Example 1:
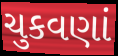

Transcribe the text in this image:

ચુકવણાં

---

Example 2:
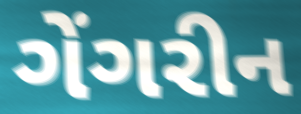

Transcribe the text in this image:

ગેંગરીન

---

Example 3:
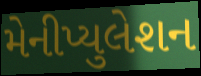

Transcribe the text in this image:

મેનીપ્યુલેશન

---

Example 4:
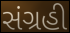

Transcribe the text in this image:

સંગ્રહી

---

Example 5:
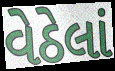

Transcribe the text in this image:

વેઠેલાં